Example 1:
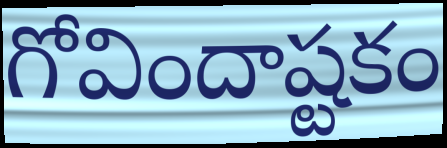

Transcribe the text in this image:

గోవిందాష్టకం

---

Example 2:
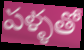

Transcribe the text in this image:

పళ్ళతో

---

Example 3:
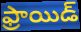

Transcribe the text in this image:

ఫ్రాయిడ్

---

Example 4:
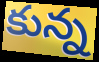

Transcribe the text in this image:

కున్న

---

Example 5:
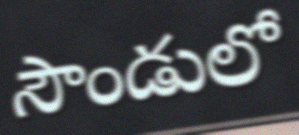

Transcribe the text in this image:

సౌండులో